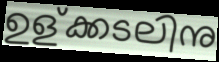
ഉള്ക്കടലിനു